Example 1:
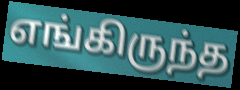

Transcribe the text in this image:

எங்கிருந்த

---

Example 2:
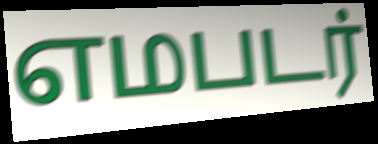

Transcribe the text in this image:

எமபடர்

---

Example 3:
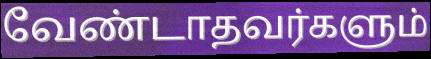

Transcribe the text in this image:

வேண்டாதவர்களும்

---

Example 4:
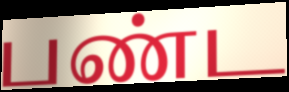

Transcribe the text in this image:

பண்ட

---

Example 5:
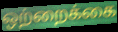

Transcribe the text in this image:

ஒற்றைக்கை